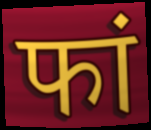
फां